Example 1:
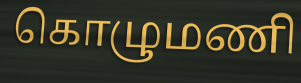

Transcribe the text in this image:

கொழுமணி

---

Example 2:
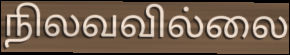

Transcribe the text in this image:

நிலவவில்லை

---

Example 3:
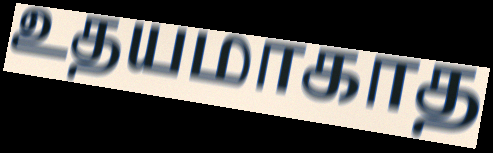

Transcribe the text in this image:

உதயமாகாத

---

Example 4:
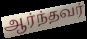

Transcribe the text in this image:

ஆர்ந்தவர்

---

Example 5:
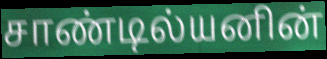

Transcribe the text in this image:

சாண்டில்யனின்